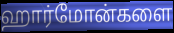
ஹார்மோன்களை